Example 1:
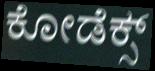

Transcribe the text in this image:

ಕೋಡೆಕ್ಸ್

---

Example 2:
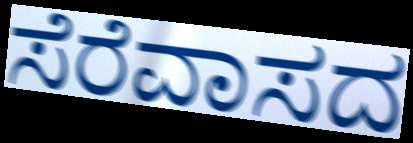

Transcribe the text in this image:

ಸೆರೆವಾಸದ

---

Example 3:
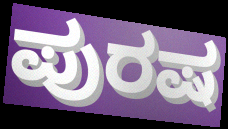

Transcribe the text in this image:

ಪುರಷ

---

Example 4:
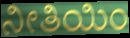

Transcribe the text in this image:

ನೀತಿಯಿಂ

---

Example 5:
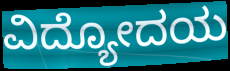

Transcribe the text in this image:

ವಿದ್ಯೋದಯ